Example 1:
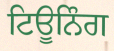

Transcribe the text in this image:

ਟਿਊਨਿੰਗ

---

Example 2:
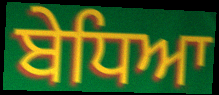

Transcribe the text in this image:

ਬੇਧਿਆ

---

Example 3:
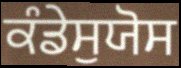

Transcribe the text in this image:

ਕੰਡੇਸੁਯੋਸ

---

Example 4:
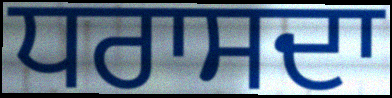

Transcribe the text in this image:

ਧਰਾਸਦਾ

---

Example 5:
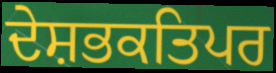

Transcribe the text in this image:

ਦੇਸ਼ਭਕਤਿਪਰ